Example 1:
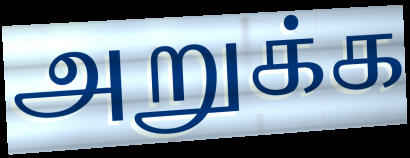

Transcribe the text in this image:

அறுக்க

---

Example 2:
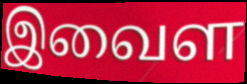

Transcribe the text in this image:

இவைள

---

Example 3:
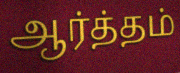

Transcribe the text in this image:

ஆர்த்தம்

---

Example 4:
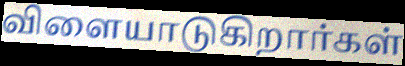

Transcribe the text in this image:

விளையாடுகிறார்கள்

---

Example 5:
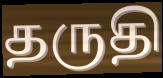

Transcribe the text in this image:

தருதி